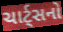
ચાર્ટ્સનો